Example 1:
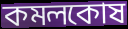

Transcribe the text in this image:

কমলকোষ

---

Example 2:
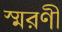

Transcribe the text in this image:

স্মরণী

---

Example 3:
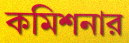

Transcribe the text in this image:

কমিশনার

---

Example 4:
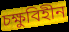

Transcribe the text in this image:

চক্ষুবিহীন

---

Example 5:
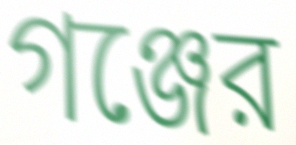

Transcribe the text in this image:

গঞ্জের